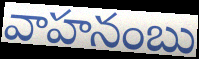
వాహనంబు